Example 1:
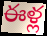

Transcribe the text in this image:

ఈళ్ల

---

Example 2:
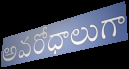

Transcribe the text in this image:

అవరోధాలుగా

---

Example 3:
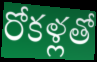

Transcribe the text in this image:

రోకళ్లతో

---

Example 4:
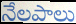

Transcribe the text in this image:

నేలపాలు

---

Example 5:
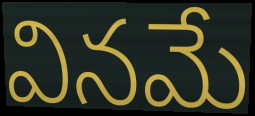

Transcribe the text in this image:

వినమే